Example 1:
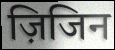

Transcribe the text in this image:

ज़िजिन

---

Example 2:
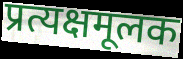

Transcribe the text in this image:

प्रत्यक्षमूलक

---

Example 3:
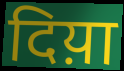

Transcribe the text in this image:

दिय़ा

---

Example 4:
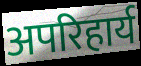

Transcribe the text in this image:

अपरिहार्य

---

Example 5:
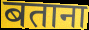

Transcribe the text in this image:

बताना